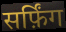
सर्फ़िंग